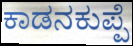
ಕಾಡನಕುಪ್ಪೆ